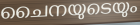
ചൈനയുടെയും